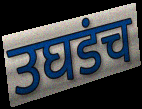
उघडंच